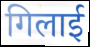
गिलाई